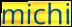
michi